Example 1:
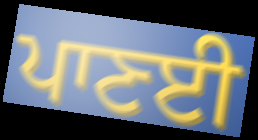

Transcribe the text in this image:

ਪਾਣਈ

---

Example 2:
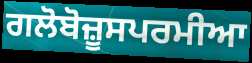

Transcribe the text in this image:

ਗਲੋਬੋਜ਼ੂਸਪਰਮੀਆ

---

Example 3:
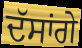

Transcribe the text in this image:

ਦੱਸਾਂਗੇ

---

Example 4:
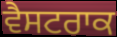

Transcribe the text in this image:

ਵੈਸਟਰਾਕ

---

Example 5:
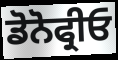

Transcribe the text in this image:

ਡੋਨੋਫ੍ਰੀਓ